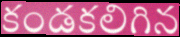
కండకలిగిన